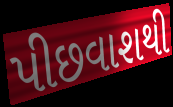
પીછવાશથી